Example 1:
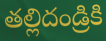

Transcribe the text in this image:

తల్లిదండ్రికి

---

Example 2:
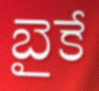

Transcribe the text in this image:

బైకే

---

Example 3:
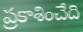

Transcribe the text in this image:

ప్రకాశించేది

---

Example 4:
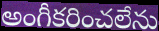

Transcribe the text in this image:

అంగీకరించలేను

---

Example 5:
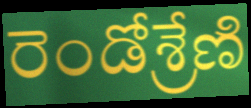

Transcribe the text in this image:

రెండోశ్రేణి